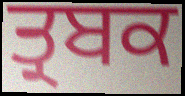
ਤ੍ਰਬਕ